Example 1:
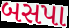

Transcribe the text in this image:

બસપા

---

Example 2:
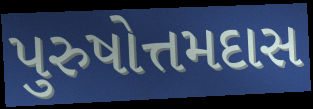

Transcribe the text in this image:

પુરુષોત્તમદાસ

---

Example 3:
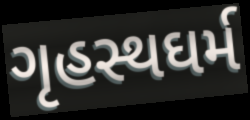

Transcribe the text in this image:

ગૃહસ્થઘર્મ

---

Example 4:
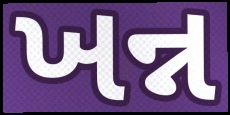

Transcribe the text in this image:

ખન્ન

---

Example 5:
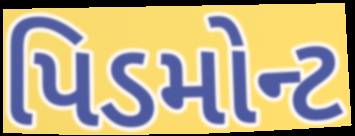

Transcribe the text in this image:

પિડમોન્ટ